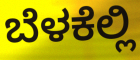
ಬೆಳಕೆಲ್ಲಿ